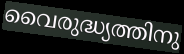
വൈരുദ്ധ്യത്തിനു